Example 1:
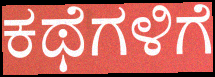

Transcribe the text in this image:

ಕಥೆಗಳಿಗೆ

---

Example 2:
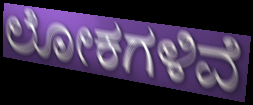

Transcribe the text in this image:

ಲೋಕಗಳಿವೆ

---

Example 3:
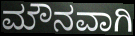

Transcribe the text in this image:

ಮೌನವಾಗಿ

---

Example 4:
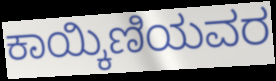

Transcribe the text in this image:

ಕಾಯ್ಕಿಣಿಯವರ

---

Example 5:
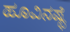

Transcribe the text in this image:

ಹೂವಿನಷ್ಟೆ